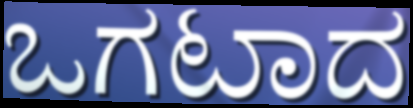
ಒಗಟಾದ